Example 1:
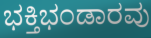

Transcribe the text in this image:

ಭಕ್ತಿಭಂಡಾರವು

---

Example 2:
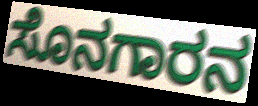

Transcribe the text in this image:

ಸೊನಗಾರನ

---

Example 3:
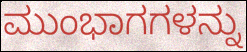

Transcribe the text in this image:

ಮುಂಭಾಗಗಳನ್ನು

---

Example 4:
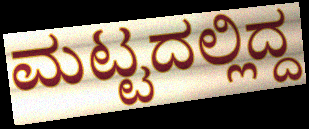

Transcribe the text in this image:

ಮಟ್ಟದಲ್ಲಿದ್ದ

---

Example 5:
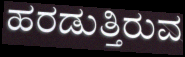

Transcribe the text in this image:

ಹರಡುತ್ತಿರುವ